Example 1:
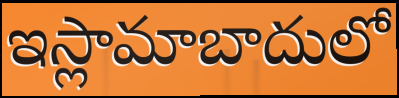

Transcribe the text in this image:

ఇస్లామాబాదులో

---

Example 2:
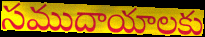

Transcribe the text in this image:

సముదాయాలకు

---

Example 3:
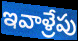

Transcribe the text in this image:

ఇవాళ్రేపు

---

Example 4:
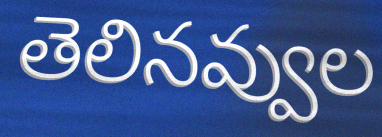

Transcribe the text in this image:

తెలినవ్వుల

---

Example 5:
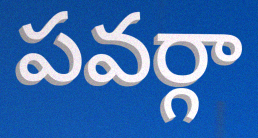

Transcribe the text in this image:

పవర్గా